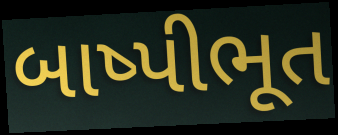
બાષ્પીભૂત